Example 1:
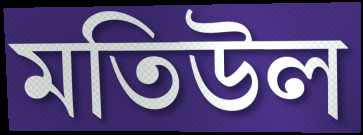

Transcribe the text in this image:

মতিউল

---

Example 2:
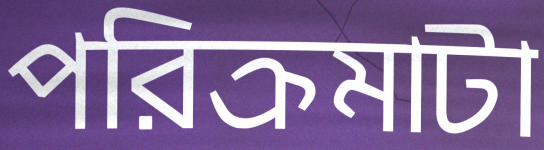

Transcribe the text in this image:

পরিক্রমাটা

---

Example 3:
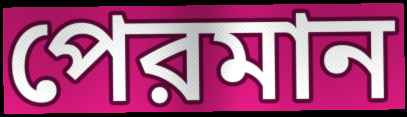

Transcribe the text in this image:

পেরমান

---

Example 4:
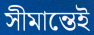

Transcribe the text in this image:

সীমান্তেই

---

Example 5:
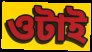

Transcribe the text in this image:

ওটাই